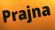
Prajna